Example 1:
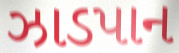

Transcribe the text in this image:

ઝાડપાન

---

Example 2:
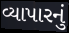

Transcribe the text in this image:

વ્યાપારનું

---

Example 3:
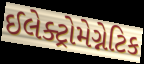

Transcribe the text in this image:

ઈલેક્ટ્રોમેગ્નેટિક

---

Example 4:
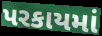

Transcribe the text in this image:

પરકાયમાં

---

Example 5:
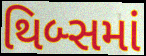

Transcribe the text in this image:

થિબ્સમાં